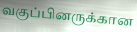
வகுப்பினருக்கான